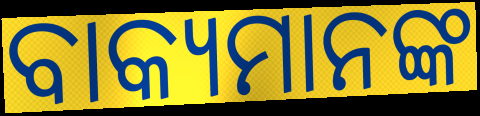
ବାକ୍ୟମାନଙ୍କ